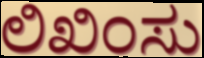
ಲಿಖಿಂಸು